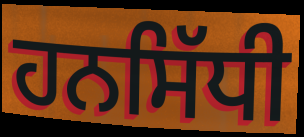
ਹਨਸਿੱਧੀ